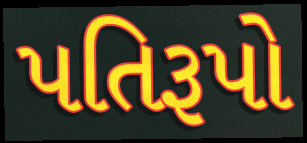
પતિરૂપો